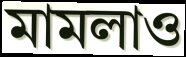
মামলাও